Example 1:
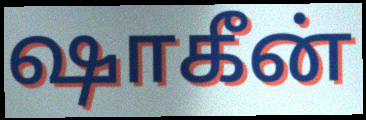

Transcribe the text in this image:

ஷாகீன்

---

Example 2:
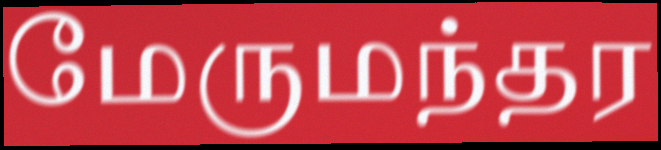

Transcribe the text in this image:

மேருமந்தர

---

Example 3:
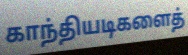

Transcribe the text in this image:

காந்தியடிகளைத்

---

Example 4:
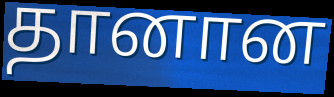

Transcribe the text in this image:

தானான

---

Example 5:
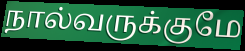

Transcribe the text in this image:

நால்வருக்குமே